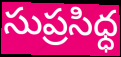
సుప్రసిధ్ధ